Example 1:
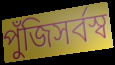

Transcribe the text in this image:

পুঁজিসর্বস্ব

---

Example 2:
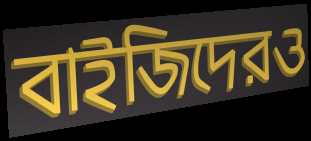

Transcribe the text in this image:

বাইজিদেরও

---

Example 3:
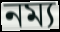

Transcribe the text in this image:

নম্য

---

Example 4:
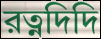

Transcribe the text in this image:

রত্নদিদি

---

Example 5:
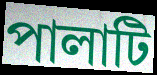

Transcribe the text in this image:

পালাটি